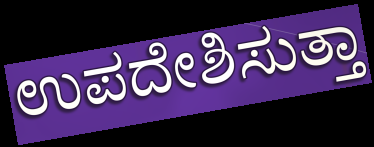
ಉಪದೇಶಿಸುತ್ತಾ